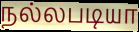
நல்லபடியா